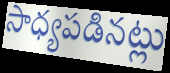
సాధ్యపడినట్లు